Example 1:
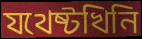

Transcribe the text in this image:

যথেষ্টখিনি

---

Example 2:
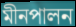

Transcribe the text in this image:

মীনপালন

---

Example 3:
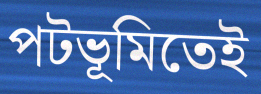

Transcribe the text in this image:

পটভূমিতেই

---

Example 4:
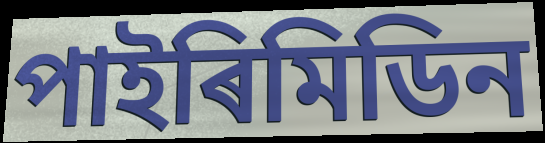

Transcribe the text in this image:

পাইৰিমিডিন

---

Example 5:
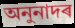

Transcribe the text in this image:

অনুনাদৰ